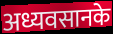
अध्यवसानके